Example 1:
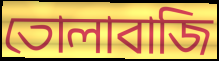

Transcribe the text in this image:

তোলাবাজি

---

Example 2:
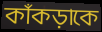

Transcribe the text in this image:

কাঁকড়াকে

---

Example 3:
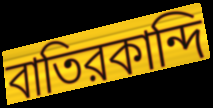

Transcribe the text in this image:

বাতিরকান্দি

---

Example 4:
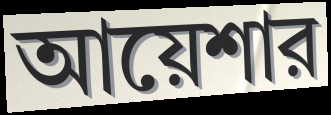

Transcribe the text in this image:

আয়েশার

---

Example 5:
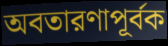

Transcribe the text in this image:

অবতারণাপূর্বক